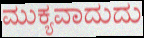
ಮುಕ್ಯವಾದುದು